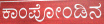
ಕಾಂಪೋಂಡಿನ